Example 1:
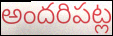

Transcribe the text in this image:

అందరిపట్ల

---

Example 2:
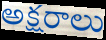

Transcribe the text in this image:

అక్షరాలు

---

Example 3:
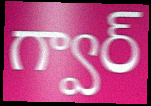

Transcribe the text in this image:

గ్వార్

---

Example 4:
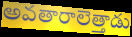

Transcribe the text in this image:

అవతారాలెత్తాడు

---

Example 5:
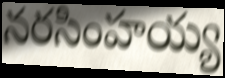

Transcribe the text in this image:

నరసింహయ్య